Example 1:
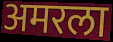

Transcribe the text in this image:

अमरला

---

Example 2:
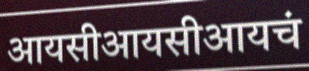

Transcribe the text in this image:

आयसीआयसीआयचं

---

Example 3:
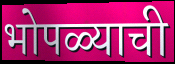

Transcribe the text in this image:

भोपळ्याची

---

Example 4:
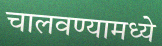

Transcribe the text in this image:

चालवण्यामध्ये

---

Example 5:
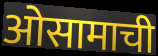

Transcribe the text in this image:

ओसामाची